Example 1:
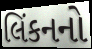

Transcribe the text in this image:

લિંકનનો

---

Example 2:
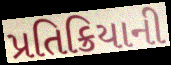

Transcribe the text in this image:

પ્રતિક્રિયાની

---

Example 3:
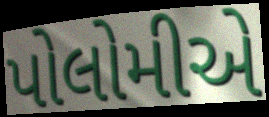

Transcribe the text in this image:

પોલોમીએ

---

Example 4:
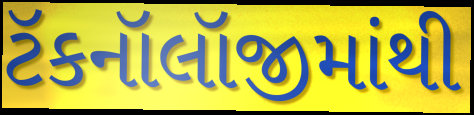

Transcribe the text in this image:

ટૅકનૉલૉજીમાંથી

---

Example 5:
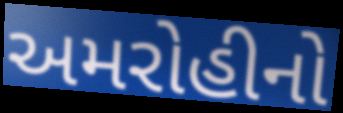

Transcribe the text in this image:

અમરોહીનો